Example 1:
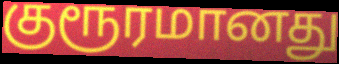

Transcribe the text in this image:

குரூரமானது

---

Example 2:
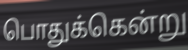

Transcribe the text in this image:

பொதுக்கென்று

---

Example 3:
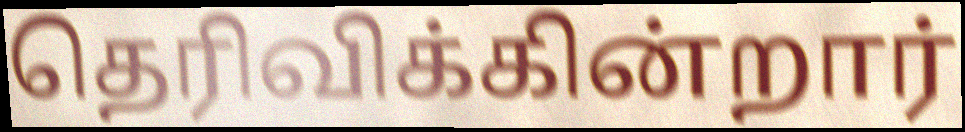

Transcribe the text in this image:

தெரிவிக்கின்றார்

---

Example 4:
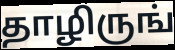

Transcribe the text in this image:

தாழிருங்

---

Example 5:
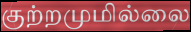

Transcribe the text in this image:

குற்றமுமில்லை